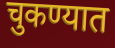
चुकण्यात